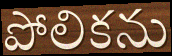
పోలికను